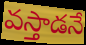
వస్తాడనే